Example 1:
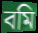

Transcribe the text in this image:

বমি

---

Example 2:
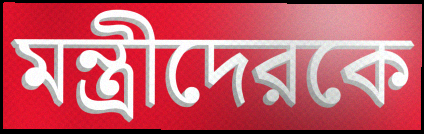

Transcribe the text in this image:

মন্ত্রীদেরকে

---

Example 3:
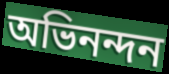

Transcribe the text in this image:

অভিনন্দন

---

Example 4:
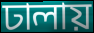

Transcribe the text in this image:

ঢালায়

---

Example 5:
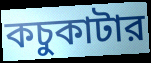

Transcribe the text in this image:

কচুকাটার